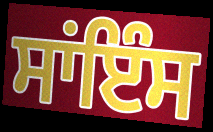
ਸਾਂਇੰਸ